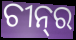
ଚୀନ୍‌ର